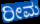
ರೀಮ